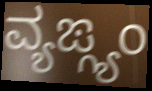
ವ್ಯಙ್ಗ್ಯಂ